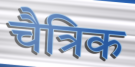
चैत्रिक